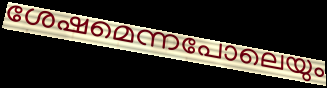
ശേഷമെന്നപോലെയും